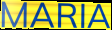
MARIA